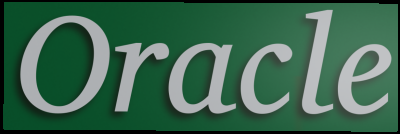
Oracle